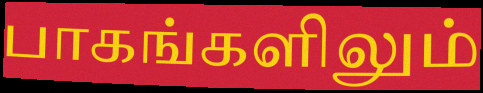
பாகங்களிலும்